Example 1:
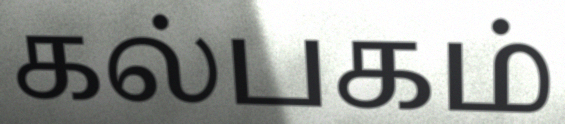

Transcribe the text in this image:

கல்பகம்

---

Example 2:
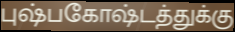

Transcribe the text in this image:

புஷ்பகோஷ்டத்துக்கு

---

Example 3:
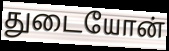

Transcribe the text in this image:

துடையோன்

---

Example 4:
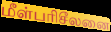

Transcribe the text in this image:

மீள்பரிசீலனை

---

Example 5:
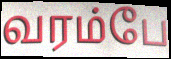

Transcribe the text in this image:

வரம்பே